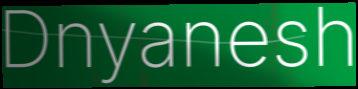
Dnyanesh